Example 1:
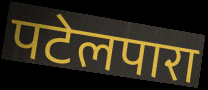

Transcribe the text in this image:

पटेलपारा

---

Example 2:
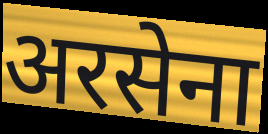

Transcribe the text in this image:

अरसेना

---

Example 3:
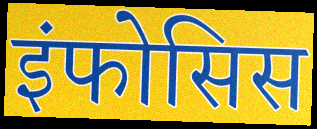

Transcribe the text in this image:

इंफोसिस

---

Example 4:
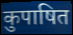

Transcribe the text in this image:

कुपाषित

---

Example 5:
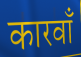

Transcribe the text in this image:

कारवाँ